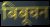
बिबूचन